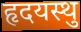
हृदयस्थु